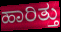
ಹಾರಿತ್ತು